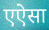
एऐसा